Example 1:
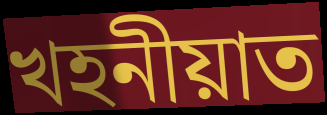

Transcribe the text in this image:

খহনীয়াত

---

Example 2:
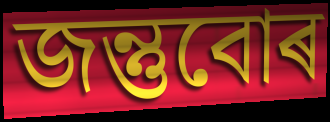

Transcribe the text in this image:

জন্তুবোৰ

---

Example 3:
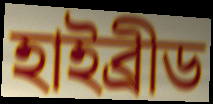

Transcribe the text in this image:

হাইব্ৰীড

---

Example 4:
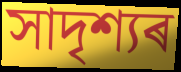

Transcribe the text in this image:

সাদৃশ্যৰ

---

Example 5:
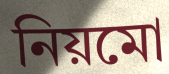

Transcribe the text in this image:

নিয়মো